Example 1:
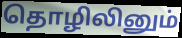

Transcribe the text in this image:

தொழிலினும்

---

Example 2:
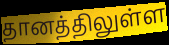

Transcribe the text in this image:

தானத்திலுள்ள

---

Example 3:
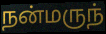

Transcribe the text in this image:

நன்மருந்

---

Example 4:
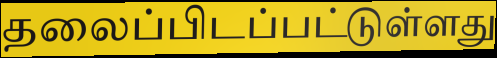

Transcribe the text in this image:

தலைப்பிடப்பட்டுள்ளது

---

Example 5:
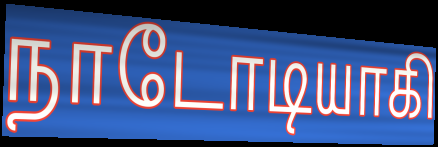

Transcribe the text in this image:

நாடோடியாகி